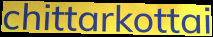
chittarkottai